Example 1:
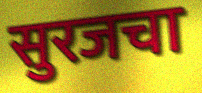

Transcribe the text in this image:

सुरजचा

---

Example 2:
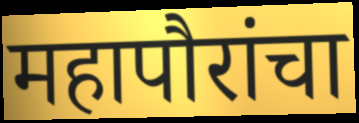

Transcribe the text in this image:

महापौरांचा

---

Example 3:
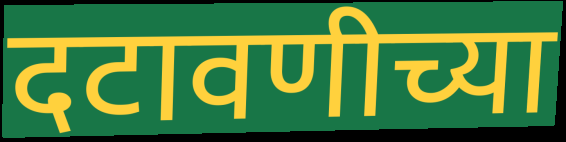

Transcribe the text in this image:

दटावणीच्या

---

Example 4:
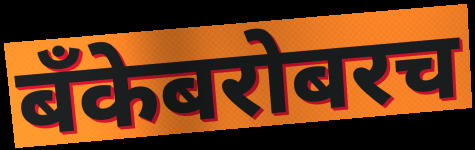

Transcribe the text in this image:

बँकेबरोबरच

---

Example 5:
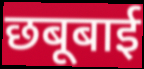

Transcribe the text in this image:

छबूबाई